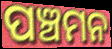
ପଞ୍ଚମନ